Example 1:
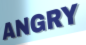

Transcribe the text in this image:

ANGRY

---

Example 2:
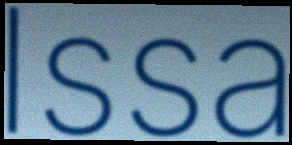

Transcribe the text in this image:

Issa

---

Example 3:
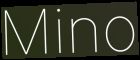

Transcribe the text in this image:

Mino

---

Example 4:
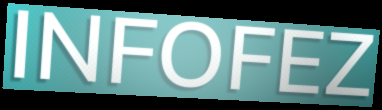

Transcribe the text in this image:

INFOFEZ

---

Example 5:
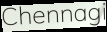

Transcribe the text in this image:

Chennagi